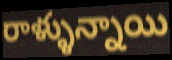
రాళ్ళున్నాయి